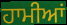
ਹਾਮੀਆਂ